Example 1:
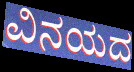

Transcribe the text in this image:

ವಿನಯದ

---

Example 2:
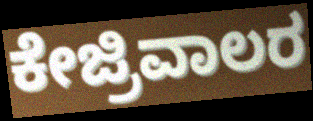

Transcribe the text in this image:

ಕೇಜ್ರಿವಾಲರ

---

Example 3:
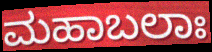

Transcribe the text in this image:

ಮಹಾಬಲಾಃ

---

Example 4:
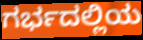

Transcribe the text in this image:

ಗರ್ಭದಲ್ಲಿಯ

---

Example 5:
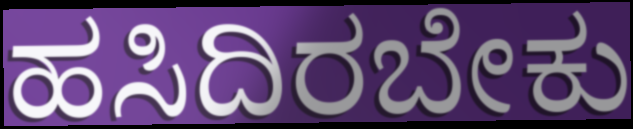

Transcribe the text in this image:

ಹಸಿದಿರಬೇಕು